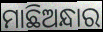
ମାଛିଅନ୍ଧାର